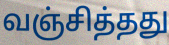
வஞ்சித்தது